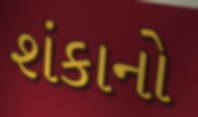
શંકાનો